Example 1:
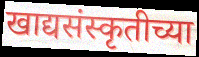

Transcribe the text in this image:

खाद्यसंस्कृतीच्या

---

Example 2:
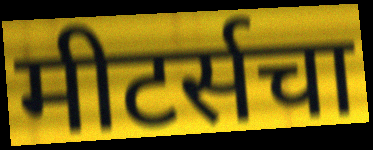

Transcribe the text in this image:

मीटर्सचा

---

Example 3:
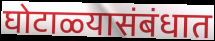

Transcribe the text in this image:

घोटाळ्यासंबंधात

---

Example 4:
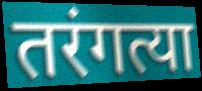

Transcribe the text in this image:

तरंगत्या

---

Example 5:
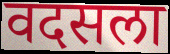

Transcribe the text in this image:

वदसला